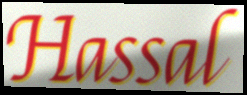
Hassal